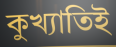
কুখ্যাতিই